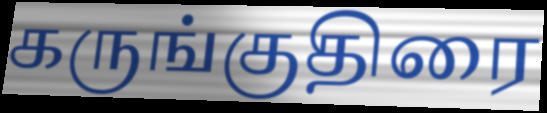
கருங்குதிரை